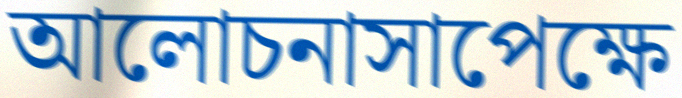
আলোচনাসাপেক্ষে